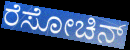
ರೆಸೋಚಿನ್